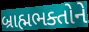
બ્રાહ્મભક્તોને